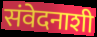
संवेदनाशी